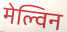
मेल्विन